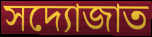
সদ্যোজাত